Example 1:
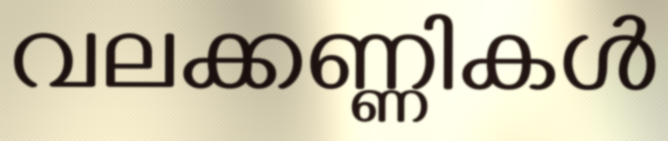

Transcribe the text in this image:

വലക്കണ്ണികൾ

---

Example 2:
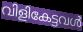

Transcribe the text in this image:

വിളികേട്ടവൾ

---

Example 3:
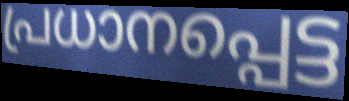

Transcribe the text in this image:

പ്രധാനപ്പെട്ട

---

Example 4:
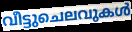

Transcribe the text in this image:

വീട്ടുചെലവുകൾ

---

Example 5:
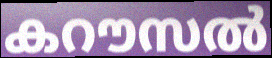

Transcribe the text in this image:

കറൗസൽ